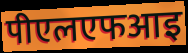
पीएलएफआइ